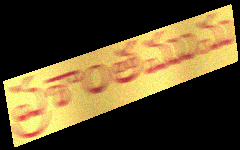
ప్రశాంతమును